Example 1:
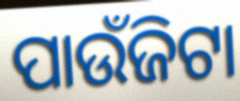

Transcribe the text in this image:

ପାଉଁଜିଟା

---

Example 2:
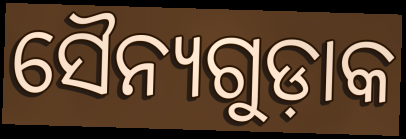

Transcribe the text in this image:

ସୈନ୍ୟଗୁଡ଼ାକ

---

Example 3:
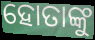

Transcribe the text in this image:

ହୋତାଙ୍କୁ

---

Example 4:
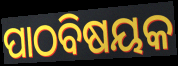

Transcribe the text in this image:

ପାଠବିଷୟକ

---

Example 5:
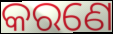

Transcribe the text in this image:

କରଣେ